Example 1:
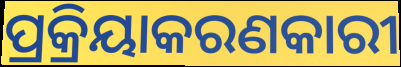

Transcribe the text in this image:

ପ୍ରକ୍ରିୟାକରଣକାରୀ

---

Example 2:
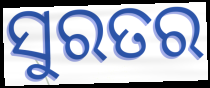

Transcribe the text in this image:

ସୁରତର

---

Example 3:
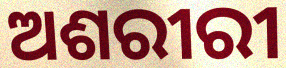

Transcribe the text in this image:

ଅଶରୀରୀ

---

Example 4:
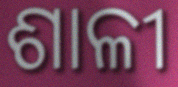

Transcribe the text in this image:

ଶାଳୀ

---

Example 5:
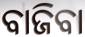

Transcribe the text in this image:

ବାଜିବା